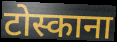
टोस्काना